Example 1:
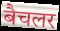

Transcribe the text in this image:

बैचलर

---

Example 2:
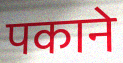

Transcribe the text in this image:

पकाने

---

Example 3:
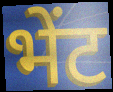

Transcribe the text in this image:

भेंट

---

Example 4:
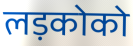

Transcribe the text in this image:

लड़कोको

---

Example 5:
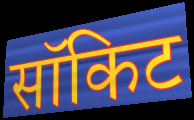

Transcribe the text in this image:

सॉकिट